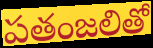
పతంజలితో